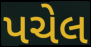
પચેલ